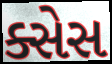
ક્સેસ